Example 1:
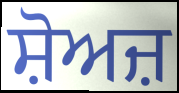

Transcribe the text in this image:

ਸ਼ੋਅਜ਼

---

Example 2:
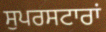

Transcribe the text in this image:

ਸੁਪਰਸਟਾਰਾਂ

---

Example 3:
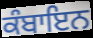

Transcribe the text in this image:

ਕੰਬਾਇਨ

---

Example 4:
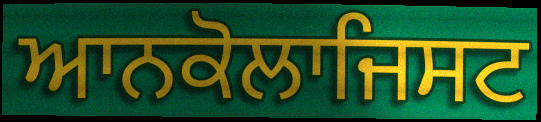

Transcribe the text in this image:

ਆਨਕੋਲਾਜਿਸਟ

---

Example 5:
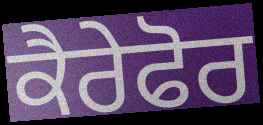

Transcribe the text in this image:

ਕੈਰੇਫੋਰ